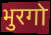
भुरगो